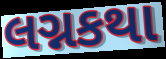
લગ્નકથા